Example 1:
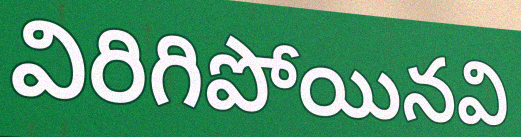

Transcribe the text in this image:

విరిగిపోయినవి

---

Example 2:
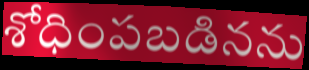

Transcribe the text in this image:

శోధింపబడినను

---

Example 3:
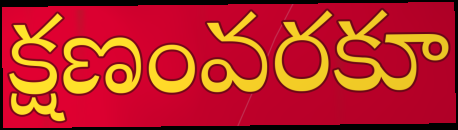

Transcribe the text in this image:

క్షణంవరకూ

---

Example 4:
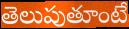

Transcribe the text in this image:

తెలుపుతూంటే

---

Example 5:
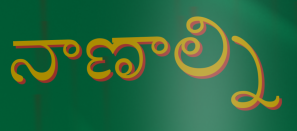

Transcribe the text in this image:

నాణాల్ని